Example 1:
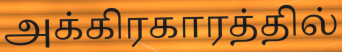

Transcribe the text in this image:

அக்கிரகாரத்தில்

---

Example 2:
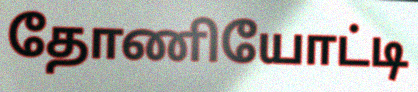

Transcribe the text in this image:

தோணியோட்டி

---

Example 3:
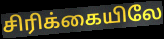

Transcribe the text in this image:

சிரிக்கையிலே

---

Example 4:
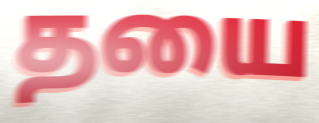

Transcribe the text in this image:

தயை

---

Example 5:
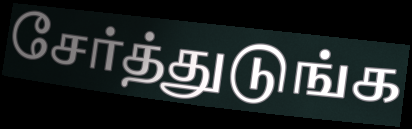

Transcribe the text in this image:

சேர்த்துடுங்க